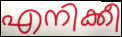
എനിക്കീ